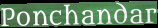
Ponchandar